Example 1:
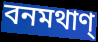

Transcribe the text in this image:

বনমথাণ্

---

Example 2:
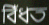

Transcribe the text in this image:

বিঁধত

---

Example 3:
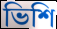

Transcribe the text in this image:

ভিশি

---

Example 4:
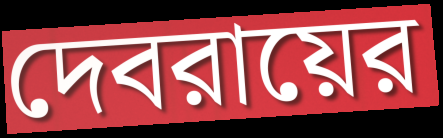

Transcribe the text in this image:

দেবরায়ের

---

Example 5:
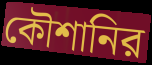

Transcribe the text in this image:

কৌশানির